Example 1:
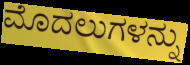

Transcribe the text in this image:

ಮೊದಲುಗಳನ್ನು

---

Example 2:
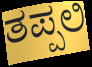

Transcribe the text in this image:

ತಪ್ಪಲಿ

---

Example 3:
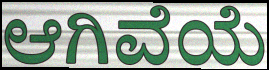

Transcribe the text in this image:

ಆಗಿವೆಯೆ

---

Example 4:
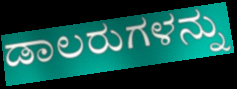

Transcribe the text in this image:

ಡಾಲರುಗಳನ್ನು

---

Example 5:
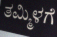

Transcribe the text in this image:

ತಮ್ಮಿಳಗೆ